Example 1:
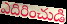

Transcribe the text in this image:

ఎదిరించుడి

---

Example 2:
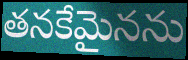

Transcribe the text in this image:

తనకేమైనను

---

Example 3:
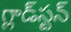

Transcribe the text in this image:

గ్లాడ్‌స్టన్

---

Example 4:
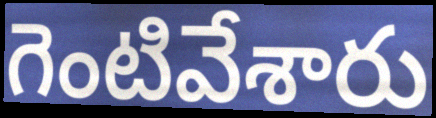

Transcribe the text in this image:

గెంటివేశారు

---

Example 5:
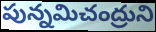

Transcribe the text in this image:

పున్నమిచంద్రుని